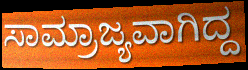
ಸಾಮ್ರಾಜ್ಯವಾಗಿದ್ದ